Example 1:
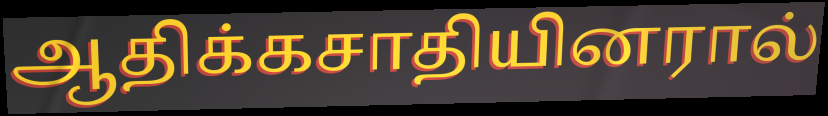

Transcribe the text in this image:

ஆதிக்கசாதியினரால்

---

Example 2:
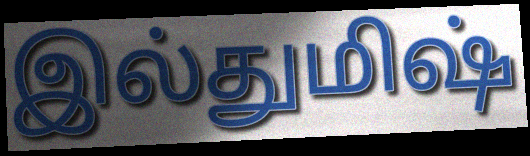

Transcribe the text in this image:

இல்துமிஷ்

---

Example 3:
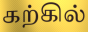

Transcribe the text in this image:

கற்கில்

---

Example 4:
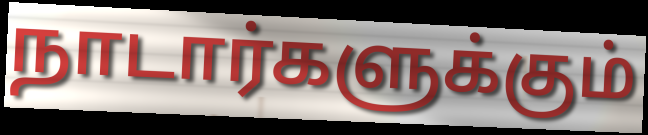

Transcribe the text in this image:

நாடார்களுக்கும்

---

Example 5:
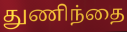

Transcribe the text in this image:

துணிந்தை